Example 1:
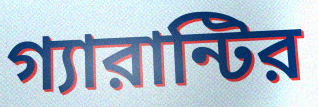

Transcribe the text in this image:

গ্যারান্টির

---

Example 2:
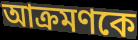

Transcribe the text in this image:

আক্রমণকে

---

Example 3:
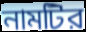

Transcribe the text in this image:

নামটির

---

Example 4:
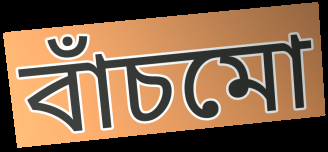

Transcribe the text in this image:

বাঁচমো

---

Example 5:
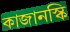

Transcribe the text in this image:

কাজানস্কি